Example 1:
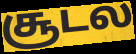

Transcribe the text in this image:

சூடல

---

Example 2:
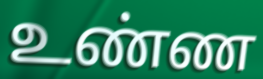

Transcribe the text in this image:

உண்ண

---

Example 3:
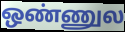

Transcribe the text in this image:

ஒண்ணுல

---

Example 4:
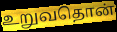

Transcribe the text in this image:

உறுவதொன்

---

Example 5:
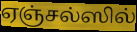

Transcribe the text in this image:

ஏஞ்சல்ஸில்